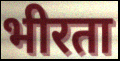
भीरता